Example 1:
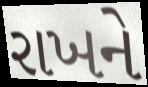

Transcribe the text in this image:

રાખને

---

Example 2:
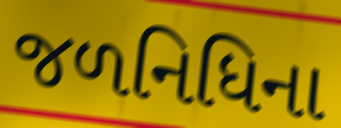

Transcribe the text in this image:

જળનિધિના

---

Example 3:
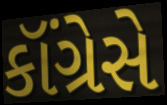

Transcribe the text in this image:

કૉંગ્રેસે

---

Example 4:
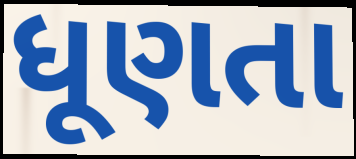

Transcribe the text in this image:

ધૂણતા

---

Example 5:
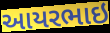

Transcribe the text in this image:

આયરભાઇ